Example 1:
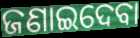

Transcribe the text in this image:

ଜଣାଇଦେବା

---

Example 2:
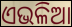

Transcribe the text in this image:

ଏଭଳିଆ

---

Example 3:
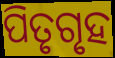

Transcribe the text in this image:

ପିତୃଗୃହ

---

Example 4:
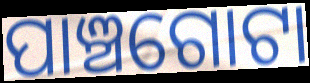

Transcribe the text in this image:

ପାଞ୍ଚଗୋଟା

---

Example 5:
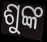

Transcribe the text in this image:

ଶୁଙ୍କ